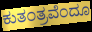
ಕುತಂತ್ರವೆಂದೂ